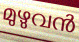
മുഴുവൻ